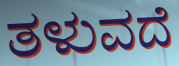
ತಳುವದೆ